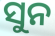
ସୁନ